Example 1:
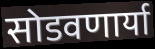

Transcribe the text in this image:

सोडवणार्या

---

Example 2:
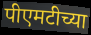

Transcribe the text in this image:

पीएमटीच्या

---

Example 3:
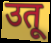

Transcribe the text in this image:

उतू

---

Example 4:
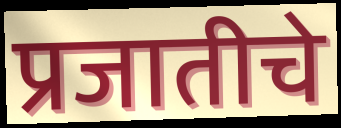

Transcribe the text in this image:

प्रजातीचे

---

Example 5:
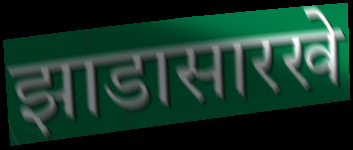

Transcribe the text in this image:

झाडासारखे